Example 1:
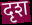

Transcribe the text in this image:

दृश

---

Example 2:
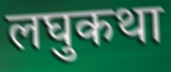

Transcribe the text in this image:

लघुकथा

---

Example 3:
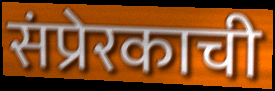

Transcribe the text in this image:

संप्रेरकाची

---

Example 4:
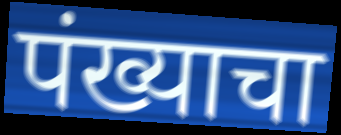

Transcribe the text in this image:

पंख्याचा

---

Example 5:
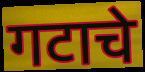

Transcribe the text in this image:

गटाचे